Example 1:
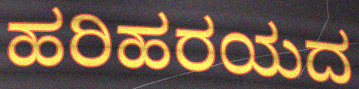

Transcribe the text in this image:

ಹರಿಹರಯದ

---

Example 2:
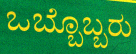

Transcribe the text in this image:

ಒಬ್ಬೊಬ್ಬರು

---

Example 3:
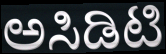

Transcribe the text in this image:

ಅಸಿಡಿಟಿ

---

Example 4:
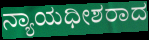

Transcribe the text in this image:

ನ್ಯಾಯಧೀಶರಾದ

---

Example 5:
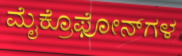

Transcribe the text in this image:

ಮೈಕ್ರೊಫೋನ್‌ಗಳ